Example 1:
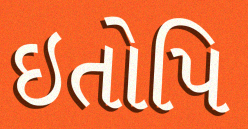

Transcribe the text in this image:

ઇતોપિ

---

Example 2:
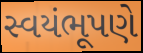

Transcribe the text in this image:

સ્વયંભૂપણે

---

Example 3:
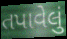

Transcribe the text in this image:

તપાવેલું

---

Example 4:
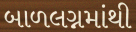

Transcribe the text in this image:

બાળલગ્નમાંથી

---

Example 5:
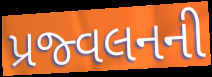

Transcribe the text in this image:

પ્રજ્વલનની